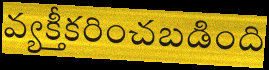
వ్యక్తీకరించబడింది